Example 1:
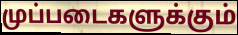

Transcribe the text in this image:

முப்படைகளுக்கும்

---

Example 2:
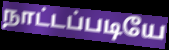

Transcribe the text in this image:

நாட்டப்படியே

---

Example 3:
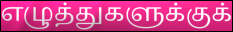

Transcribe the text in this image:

எழுத்துகளுக்குக்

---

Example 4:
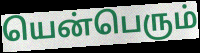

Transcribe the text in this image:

யென்பெரும்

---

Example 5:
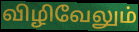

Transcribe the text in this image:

விழிவேலும்